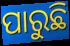
ପାରୁଛି